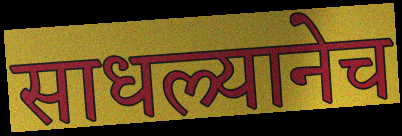
साधल्यानेच